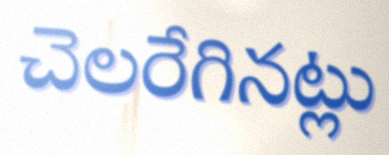
చెలరేగినట్లు